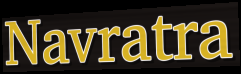
Navratra